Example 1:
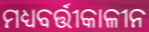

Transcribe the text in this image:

ମଧ୍ୟବର୍ତ୍ତୀକାଳୀନ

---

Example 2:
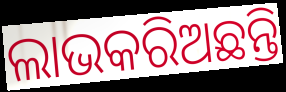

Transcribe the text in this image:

ଲାଭକରିଅଛନ୍ତି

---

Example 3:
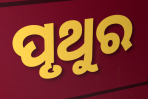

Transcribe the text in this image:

ପୃଥୁର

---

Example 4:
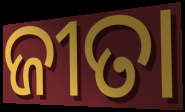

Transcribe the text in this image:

ଜୀତା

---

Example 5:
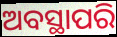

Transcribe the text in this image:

ଅବସ୍ଥାପରି